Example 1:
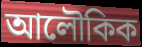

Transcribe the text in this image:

আলৌকিক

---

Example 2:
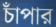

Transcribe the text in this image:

চাঁপার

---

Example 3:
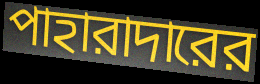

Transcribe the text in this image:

পাহারাদারের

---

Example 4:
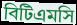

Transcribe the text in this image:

বিটিএমসি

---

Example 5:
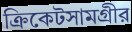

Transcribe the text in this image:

ক্রিকেটসামগ্রীর